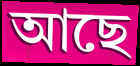
আছে